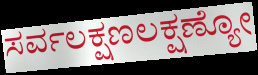
ಸರ್ವಲಕ್ಷಣಲಕ್ಷಣ್ಯೋ